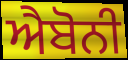
ਐਬੋਨੀ